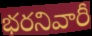
భరనివారీ